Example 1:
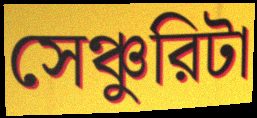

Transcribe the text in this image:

সেঞ্চুরিটা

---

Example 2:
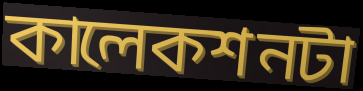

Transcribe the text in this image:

কালেকশনটা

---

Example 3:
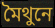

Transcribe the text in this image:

মৈথুনে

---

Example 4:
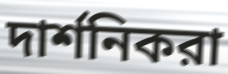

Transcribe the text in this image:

দার্শনিকরা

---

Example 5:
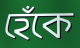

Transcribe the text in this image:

হেঁকে